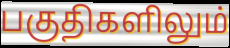
பகுதிகளிலும்